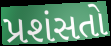
પ્રશંસતો